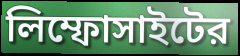
লিম্ফোসাইটের